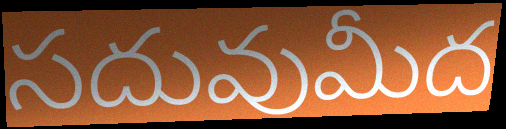
సదువుమీద